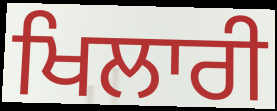
ਖਿਲਾਰੀ